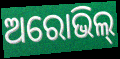
ଅରୋଭିଲ୍